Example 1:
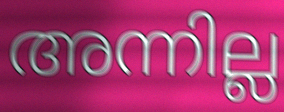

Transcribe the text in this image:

അന്നില്ല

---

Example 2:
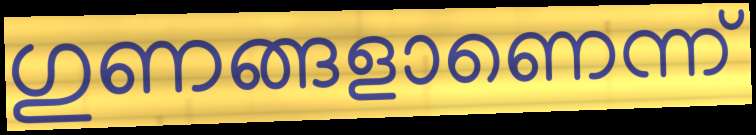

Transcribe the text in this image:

ഗുണങ്ങളാണെന്ന്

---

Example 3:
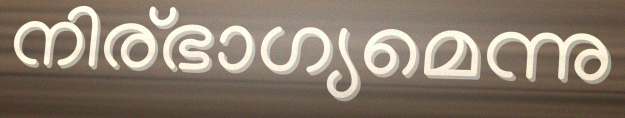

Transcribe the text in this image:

നിര്ഭാഗ്യമെന്നു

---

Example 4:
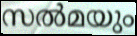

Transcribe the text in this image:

സൽമയും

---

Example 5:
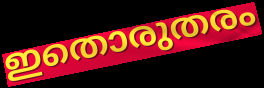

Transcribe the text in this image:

ഇതൊരുതരം